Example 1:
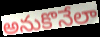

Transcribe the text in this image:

అనుకొనేలా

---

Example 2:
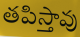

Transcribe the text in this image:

తపిస్తావు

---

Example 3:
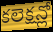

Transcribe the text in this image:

కలెక్షన్లో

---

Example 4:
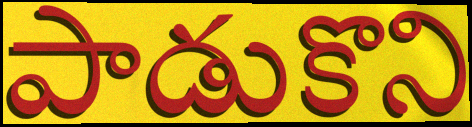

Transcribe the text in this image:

పాడుకొని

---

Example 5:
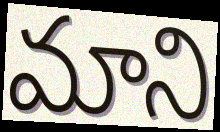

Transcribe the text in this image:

మాని